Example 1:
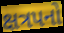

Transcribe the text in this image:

ક્ષત્રપનો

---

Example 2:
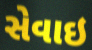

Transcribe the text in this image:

સેવાઇ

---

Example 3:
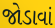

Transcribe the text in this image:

જોડાવાં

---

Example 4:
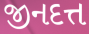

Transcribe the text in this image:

જીનદત્ત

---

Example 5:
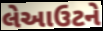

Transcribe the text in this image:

લેઆઉટને